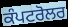
ਕੰਪਟਰੋਲਰ